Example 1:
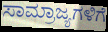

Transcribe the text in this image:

ಸಾಮ್ರಾಜ್ಯಗಳಿಗೆ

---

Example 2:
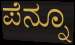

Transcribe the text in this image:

ಪೆನ್ನೂ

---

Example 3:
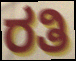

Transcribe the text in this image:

ರತಿ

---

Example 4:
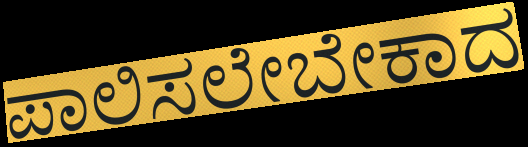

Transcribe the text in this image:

ಪಾಲಿಸಲೇಬೇಕಾದ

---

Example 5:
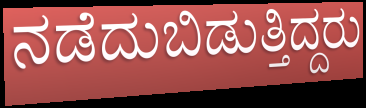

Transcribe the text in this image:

ನಡೆದುಬಿಡುತ್ತಿದ್ದರು